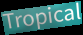
Tropical